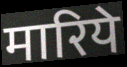
मारिये